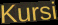
Kursi